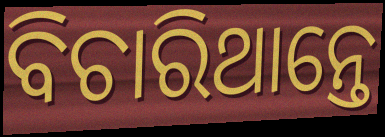
ବିଚାରିଥାନ୍ତେ